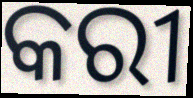
କରୀ